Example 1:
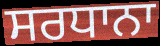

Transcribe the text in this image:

ਸਰਧਾਨਾ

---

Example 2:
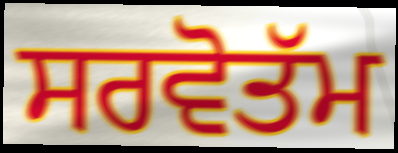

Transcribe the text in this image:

ਸਰਵੋਤੱਮ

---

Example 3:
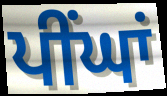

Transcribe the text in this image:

ਪੀਂਘਾਂ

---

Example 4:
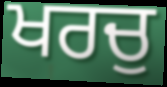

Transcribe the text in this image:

ਖਰਚੁ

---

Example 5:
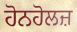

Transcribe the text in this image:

ਹੋਨਹੋਲਜ਼